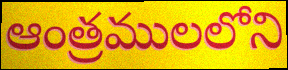
ఆంత్రములలోని